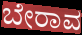
ಬೇರಾವ